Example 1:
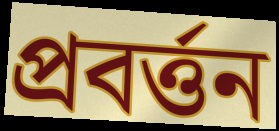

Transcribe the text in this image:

প্ৰবৰ্ত্তন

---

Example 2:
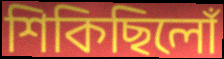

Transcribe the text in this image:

শিকিছিলোঁ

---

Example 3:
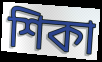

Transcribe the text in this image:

শিকা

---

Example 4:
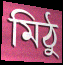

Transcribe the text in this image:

মিঠু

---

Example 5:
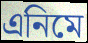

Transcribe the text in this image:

এনিমে